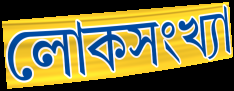
লোকসংখ্যা